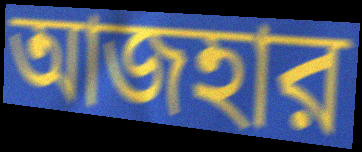
আজহার